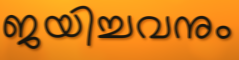
ജയിച്ചവനും